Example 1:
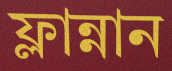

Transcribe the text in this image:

ফ্লান্নান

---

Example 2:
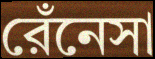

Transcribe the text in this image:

রেঁনেসা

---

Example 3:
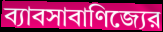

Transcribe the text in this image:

ব্যাবসাবাণিজ্যের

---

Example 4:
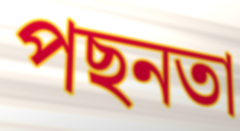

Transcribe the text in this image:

পছনতা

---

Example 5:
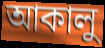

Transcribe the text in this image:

আকালু